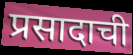
प्रसादाची